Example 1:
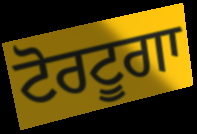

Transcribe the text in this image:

ਟੋਰਟੂਗਾ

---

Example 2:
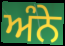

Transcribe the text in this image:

ਅੰਨੇ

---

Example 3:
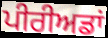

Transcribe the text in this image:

ਪੀਰੀਅਡਾਂ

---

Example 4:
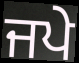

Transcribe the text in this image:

ਜਪੇ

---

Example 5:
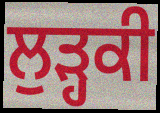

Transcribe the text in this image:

ਲੁੜ੍ਹਕੀ